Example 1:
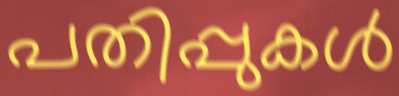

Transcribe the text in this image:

പതിപ്പുകൾ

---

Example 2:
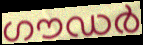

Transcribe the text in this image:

ഗൗഡർ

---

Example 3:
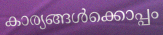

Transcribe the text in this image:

കാര്യങ്ങൾക്കൊപ്പം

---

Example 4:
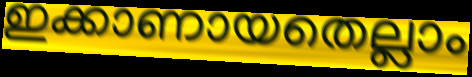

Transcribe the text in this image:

ഇക്കാണായതെല്ലാം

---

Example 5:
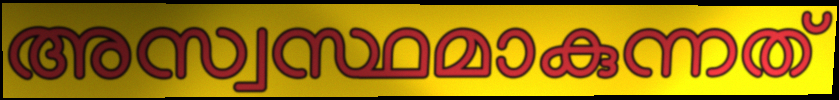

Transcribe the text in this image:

അസ്വസ്ഥമാകുന്നത്